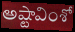
అష్టావింశో